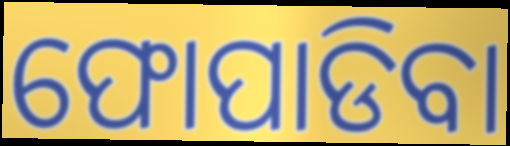
ଫୋପାଡିବା